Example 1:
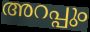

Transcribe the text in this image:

അറപ്പും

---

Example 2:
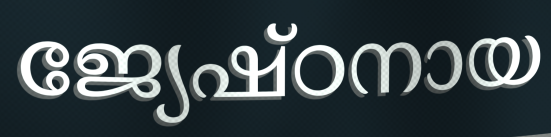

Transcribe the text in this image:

ജ്യേഷ്ഠനായ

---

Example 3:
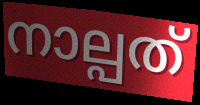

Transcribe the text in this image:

നാല്പത്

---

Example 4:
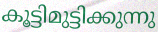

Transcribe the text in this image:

കൂട്ടിമുട്ടിക്കുന്നു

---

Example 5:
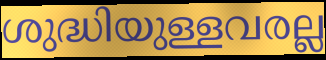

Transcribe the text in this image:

ശുദ്ധിയുള്ളവരല്ല